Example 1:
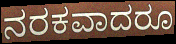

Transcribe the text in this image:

ನರಕವಾದರೂ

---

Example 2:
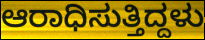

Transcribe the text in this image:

ಆರಾಧಿಸುತ್ತಿದ್ದಳು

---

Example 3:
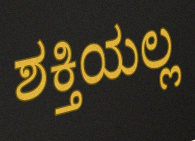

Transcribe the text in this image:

ಶಕ್ತಿಯಲ್ಲ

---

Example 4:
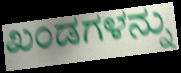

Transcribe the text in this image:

ಖಂಡಗಳನ್ನು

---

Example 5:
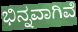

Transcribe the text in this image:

ಭಿನ್ನವಾಗಿವೆ